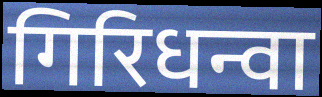
गिरिधन्वा